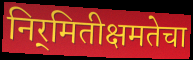
निर्मितीक्षमतेचा